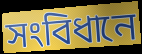
সংবিধানে